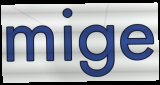
mige